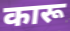
कारू